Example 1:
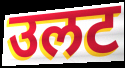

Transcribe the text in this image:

उलट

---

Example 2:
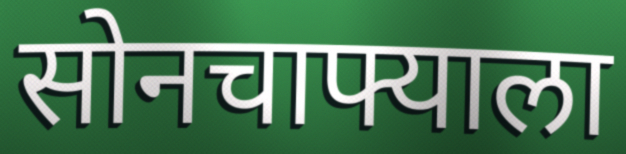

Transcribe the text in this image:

सोनचाफ्याला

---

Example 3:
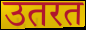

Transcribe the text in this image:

उतरत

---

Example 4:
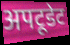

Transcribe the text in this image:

अपटूडेट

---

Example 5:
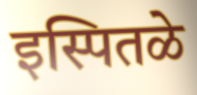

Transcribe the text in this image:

इस्पितळे